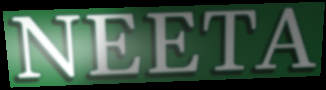
NEETA